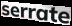
serrate